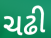
ચઢી